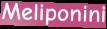
Meliponini